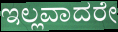
ಇಲ್ಲವಾದರೇ